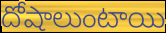
దోషాలుంటాయి